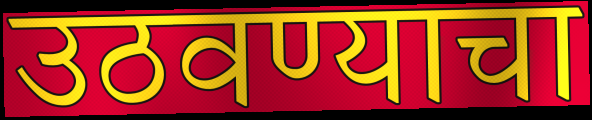
उठवण्याचा